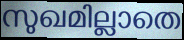
സുഖമില്ലാതെ